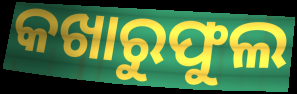
କଖାରୁଫୁଲ